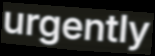
urgently